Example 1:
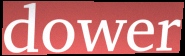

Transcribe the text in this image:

dower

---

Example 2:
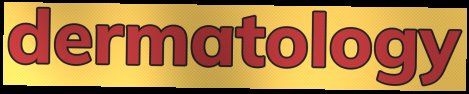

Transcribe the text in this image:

dermatology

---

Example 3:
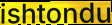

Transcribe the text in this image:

ishtondu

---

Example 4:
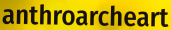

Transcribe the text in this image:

anthroarcheart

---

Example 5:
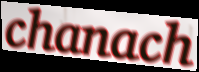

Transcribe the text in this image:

chanach